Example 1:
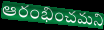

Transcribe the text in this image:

ఆరంభించమని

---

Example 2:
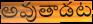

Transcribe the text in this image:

అవుతాడట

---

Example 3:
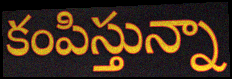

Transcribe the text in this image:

కంపిస్తున్నా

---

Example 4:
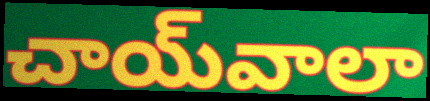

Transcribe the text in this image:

చాయ్‌వాలా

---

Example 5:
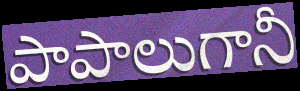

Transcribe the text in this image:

పాపాలుగానీ